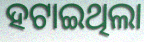
ହଟାଇଥିଲା